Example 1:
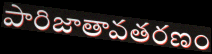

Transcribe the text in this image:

పారిజాతావతరణం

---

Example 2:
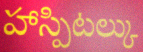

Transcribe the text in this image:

హాస్పిటల్కు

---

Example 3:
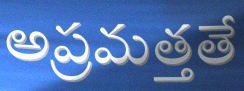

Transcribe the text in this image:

అప్రమత్తతే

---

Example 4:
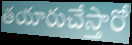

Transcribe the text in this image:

తయారుచేస్తారో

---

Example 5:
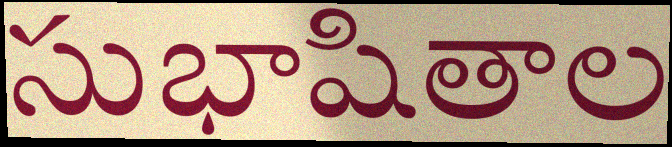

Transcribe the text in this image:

సుభాషితాల